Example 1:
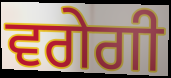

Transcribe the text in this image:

ਵਗੇਗੀ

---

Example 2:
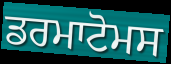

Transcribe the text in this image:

ਡਰਮਾਟੋਮਸ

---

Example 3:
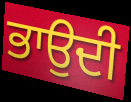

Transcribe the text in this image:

ਭਾਉਦੀ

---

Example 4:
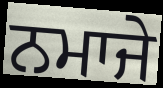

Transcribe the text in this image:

ਨਮਾਜੇ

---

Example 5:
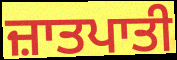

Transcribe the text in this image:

ਜ਼ਾਤਪਾਤੀ